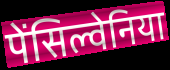
पेंसिल्वेनिया